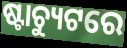
ଷ୍ଟାଚ୍ୟୁଟରେ